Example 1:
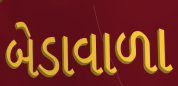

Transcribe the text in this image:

બેડાવાળા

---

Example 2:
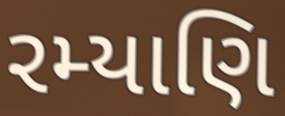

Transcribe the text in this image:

રમ્યાણિ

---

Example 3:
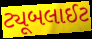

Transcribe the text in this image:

ટ્યૂબલાઈટ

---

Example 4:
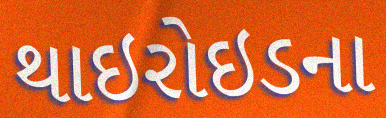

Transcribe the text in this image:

થાઇરોઇડના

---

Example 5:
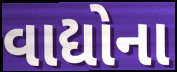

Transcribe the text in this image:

વાદ્યોના